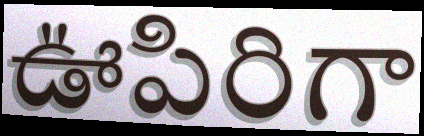
ఊపిరిగా